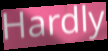
Hardly